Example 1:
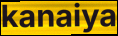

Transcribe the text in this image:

kanaiya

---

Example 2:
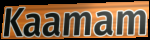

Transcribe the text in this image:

Kaamam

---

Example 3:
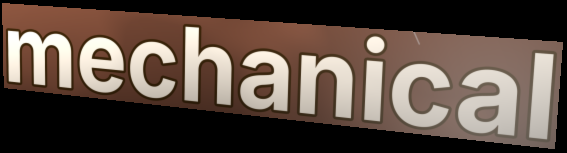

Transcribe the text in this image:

mechanical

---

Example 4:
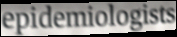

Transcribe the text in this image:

epidemiologists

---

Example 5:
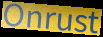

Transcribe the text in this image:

Onrust